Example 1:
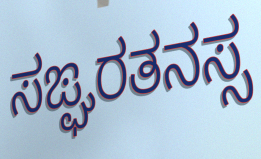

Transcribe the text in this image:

ಸಙ್ಘರತನಸ್ಸ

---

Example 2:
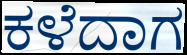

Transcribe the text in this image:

ಕಳೆದಾಗ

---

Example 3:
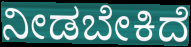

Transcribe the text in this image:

ನೀಡಬೇಕಿದೆ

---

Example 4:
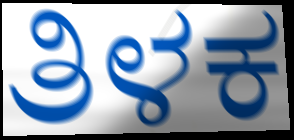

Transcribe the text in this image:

ತಿಳಕ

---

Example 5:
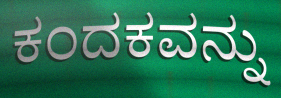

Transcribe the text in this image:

ಕಂದಕವನ್ನು